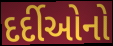
દર્દીઓનો